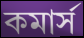
কমার্স